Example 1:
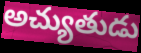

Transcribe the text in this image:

అచ్యుతుడు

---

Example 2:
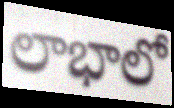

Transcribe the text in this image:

లాభాలో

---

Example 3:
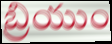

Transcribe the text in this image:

బ్రియుం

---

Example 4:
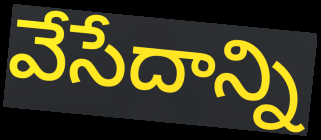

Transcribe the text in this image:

వేసేదాన్ని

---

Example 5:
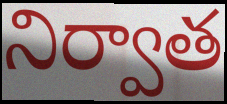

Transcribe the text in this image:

నిర్వాత